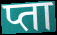
प्ता